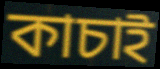
কাচাই